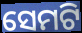
ସେମଟି